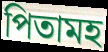
পিতামহ